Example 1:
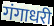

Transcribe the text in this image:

गंगाधरी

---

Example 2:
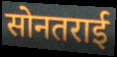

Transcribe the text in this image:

सोनतराई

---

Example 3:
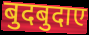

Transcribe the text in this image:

बुदबुदाए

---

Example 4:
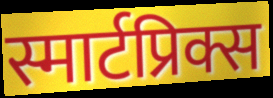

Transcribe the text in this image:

स्मार्टप्रिक्स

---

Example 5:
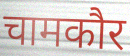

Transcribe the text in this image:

चामकौर